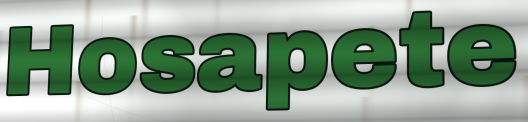
Hosapete